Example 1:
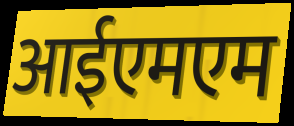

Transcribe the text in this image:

आईएमएम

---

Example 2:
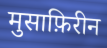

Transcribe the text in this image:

मुसाफ़िरीन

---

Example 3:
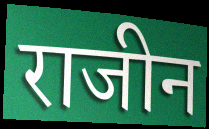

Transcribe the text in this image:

राजीन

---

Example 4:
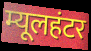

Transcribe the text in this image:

म्यूलहंटर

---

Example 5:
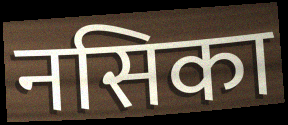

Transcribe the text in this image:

नसिका